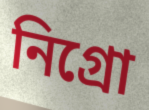
নিগ্ৰো